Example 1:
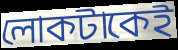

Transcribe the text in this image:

লোকটাকেই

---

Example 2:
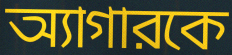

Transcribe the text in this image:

অ্যাগারকে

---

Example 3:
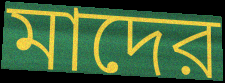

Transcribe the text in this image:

মাদের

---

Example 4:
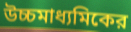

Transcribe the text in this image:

উচ্চমাধ্যমিকের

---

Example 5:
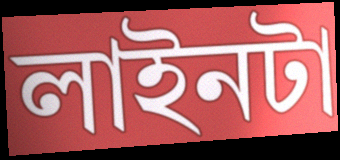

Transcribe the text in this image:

লাইনটা